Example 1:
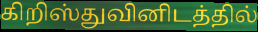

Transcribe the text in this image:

கிறிஸ்துவினிடத்தில்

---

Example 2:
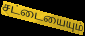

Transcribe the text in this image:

சட்டையையும்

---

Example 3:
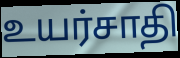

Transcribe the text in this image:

உயர்சாதி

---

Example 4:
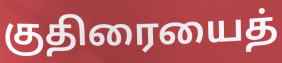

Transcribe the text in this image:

குதிரையைத்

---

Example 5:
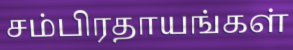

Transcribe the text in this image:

சம்பிரதாயங்கள்